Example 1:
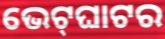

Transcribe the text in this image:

ଭେଟ୍‌ଘାଟର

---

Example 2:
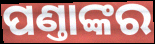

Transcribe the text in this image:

ପଣ୍ତାଙ୍କର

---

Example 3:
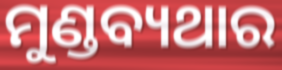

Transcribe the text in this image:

ମୁଣ୍ଡବ୍ୟଥାର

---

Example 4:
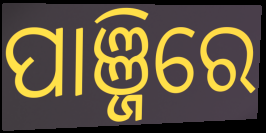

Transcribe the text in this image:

ପାଞ୍ଜିରେ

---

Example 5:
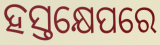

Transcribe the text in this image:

ହସ୍ତକ୍ଷେପରେ